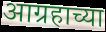
आग्रहाच्या